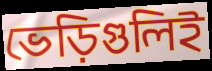
ভেড়িগুলিই